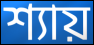
শ্যায়